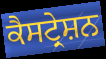
ਕੈਸਟ੍ਰੇਸ਼ਨ